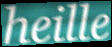
heille